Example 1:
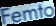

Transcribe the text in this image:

Femto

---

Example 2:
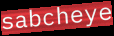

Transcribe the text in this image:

sabcheye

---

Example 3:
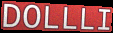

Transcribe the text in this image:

DOLLLI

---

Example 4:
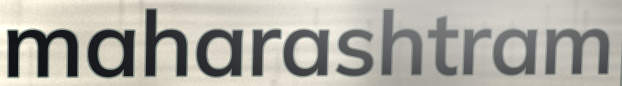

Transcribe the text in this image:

maharashtram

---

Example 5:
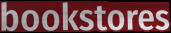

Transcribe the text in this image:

bookstores